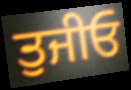
ਤੁਜੀਓ